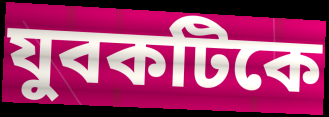
যুবকটিকে